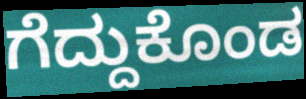
ಗೆದ್ದುಕೊಂಡ